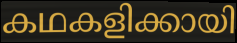
കഥകളിക്കായി